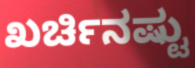
ಖರ್ಚಿನಷ್ಟು